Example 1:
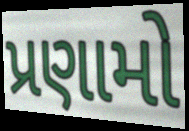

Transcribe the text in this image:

પ્રણામો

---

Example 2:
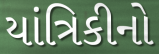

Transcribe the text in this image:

યાંત્રિકીનો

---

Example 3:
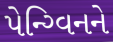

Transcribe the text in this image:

પેન્ગ્વિનને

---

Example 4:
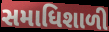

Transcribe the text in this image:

સમાધિશાળી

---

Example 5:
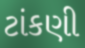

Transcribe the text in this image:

ટાંકણી